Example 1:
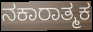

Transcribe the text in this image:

ನಕಾರಾತ್ಮಕ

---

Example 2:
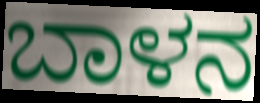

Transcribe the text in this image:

ಬಾಳನ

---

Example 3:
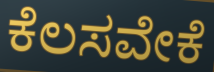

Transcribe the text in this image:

ಕೆಲಸವೇಕೆ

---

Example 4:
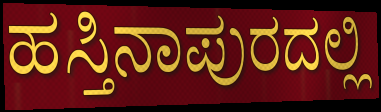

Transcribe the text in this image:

ಹಸ್ತಿನಾಪುರದಲ್ಲಿ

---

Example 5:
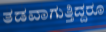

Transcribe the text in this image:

ತಡವಾಗುತ್ತಿದ್ದರೂ